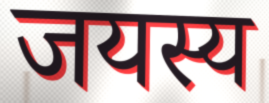
जयस्य